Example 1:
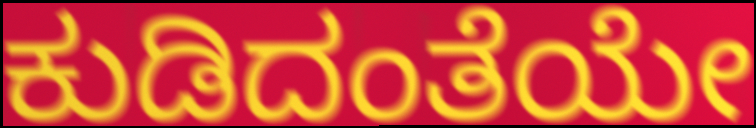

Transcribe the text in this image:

ಕುಡಿದಂತೆಯೇ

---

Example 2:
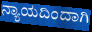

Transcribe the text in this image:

ನ್ಯಾಯದಿಂದಾಗಿ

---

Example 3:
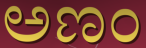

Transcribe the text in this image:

ಅಣಂ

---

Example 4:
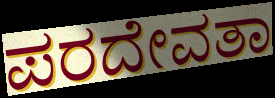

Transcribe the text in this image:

ಪರದೇವತಾ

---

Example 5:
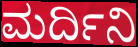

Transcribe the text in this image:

ಮರ್ದಿನಿ